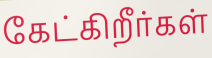
கேட்கிறீர்கள்